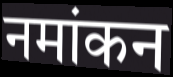
नमांकन